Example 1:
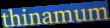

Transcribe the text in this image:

thinamum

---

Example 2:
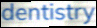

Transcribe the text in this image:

dentistry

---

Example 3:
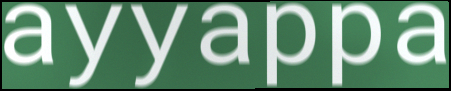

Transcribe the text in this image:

ayyappa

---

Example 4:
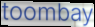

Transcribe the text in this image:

toombay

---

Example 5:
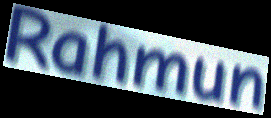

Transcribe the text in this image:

Rahmun